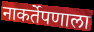
नाकर्तेपणाला